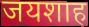
जयशाह